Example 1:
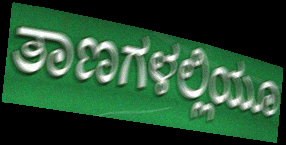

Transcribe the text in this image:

ತಾಣಗಳಲ್ಲಿಯೂ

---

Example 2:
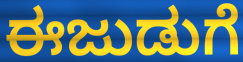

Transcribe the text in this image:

ಈಜುಡುಗೆ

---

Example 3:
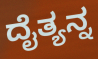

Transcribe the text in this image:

ದೈತ್ಯನ್ನ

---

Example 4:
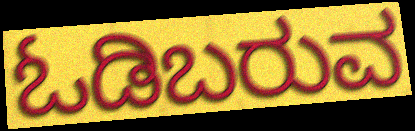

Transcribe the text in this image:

ಓಡಿಬರುವ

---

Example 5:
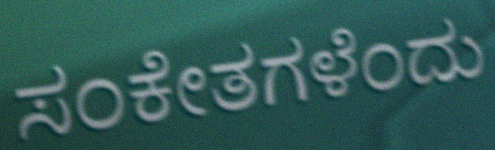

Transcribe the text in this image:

ಸಂಕೇತಗಳೆಂದು